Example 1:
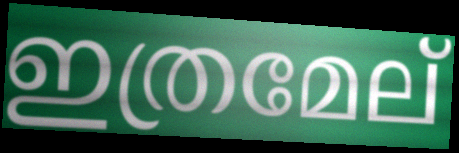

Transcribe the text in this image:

ഇത്രമേല്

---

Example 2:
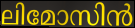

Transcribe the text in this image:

ലിമോസിൻ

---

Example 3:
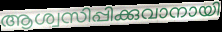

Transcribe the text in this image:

ആശ്വസിപ്പിക്കുവാനായി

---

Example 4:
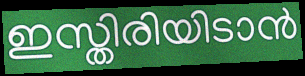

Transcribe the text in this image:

ഇസ്തിരിയിടാൻ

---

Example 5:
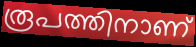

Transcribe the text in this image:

രൂപത്തിനാണ്